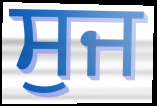
ਸੁਜ